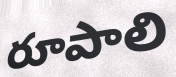
రూపాలి